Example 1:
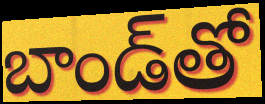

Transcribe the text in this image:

బాండ్‌తో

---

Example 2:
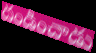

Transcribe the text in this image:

దండించాడు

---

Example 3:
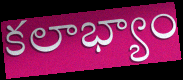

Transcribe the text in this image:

కలాభ్యాం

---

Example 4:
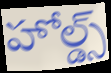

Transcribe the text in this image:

హోల్డ్స్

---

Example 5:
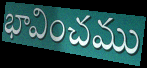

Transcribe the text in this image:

భావించము